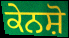
ਕੇਨਸ਼ੋ